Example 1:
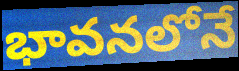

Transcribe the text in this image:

భావనలోనే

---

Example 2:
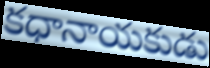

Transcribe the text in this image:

కధానాయకుడు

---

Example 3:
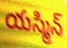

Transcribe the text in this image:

యస్మిన్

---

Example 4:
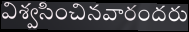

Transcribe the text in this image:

విశ్వసించినవారందరు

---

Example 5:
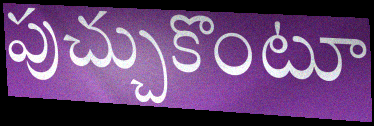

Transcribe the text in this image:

పుచ్చుకొంటూ